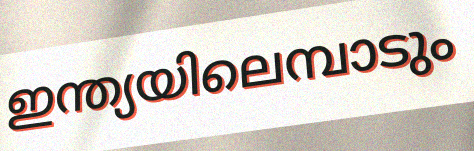
ഇന്ത്യയിലെമ്പാടും